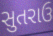
સુતરાઉ